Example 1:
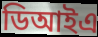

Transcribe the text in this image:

ডিআইএ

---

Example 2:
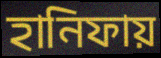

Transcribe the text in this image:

হানিফায়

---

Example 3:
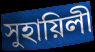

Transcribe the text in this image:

সুহায়িলী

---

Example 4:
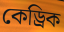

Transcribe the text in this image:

কেড্রিক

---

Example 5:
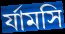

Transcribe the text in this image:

র্যামসি